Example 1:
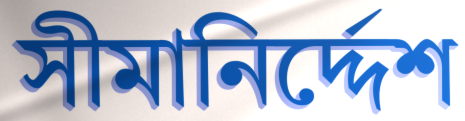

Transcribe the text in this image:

সীমানির্দ্দেশ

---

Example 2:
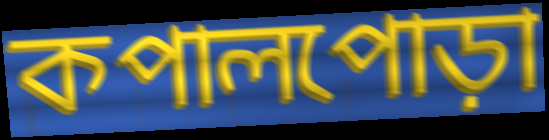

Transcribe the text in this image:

কপালপোড়া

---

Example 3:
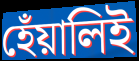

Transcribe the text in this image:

হেঁয়ালিই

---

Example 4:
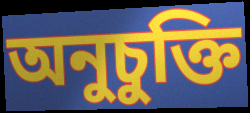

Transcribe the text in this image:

অনুচুক্তি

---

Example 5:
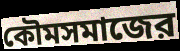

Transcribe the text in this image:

কৌমসমাজের